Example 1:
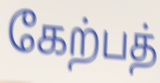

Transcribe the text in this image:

கேற்பத்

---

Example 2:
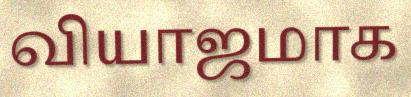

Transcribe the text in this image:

வியாஜமாக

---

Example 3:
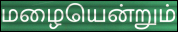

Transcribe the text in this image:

மழையென்றும்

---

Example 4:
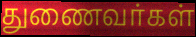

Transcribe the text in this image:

துணைவர்கள்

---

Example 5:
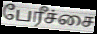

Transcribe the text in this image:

பேரீச்சை